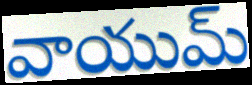
వాయుమ్